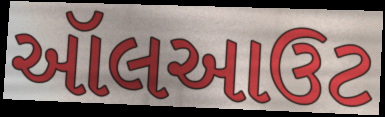
ઑલઆઉટ